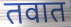
तवात